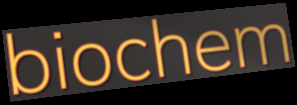
biochem